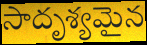
సాదృశ్యమైన